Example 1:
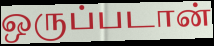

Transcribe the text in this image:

ஒருப்படான்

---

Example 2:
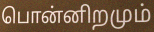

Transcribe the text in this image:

பொன்னிறமும்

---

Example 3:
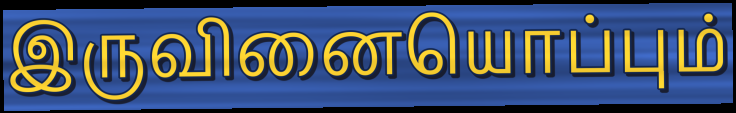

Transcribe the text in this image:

இருவினையொப்பும்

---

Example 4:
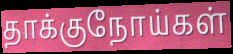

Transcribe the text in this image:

தாக்குநோய்கள்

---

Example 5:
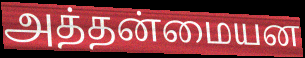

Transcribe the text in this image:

அத்தன்மையன